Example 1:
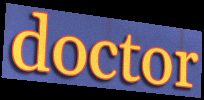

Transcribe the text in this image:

doctor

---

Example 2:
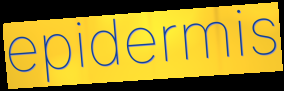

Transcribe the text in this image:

epidermis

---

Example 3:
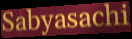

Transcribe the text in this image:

Sabyasachi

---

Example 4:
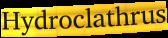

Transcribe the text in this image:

Hydroclathrus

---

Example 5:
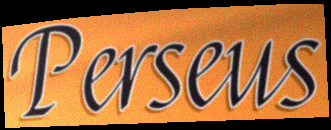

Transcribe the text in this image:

Perseus